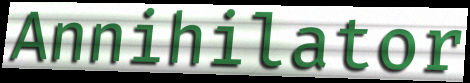
Annihilator